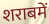
शराबमें